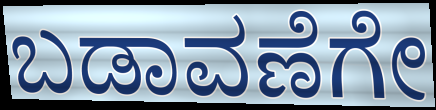
ಬಡಾವಣೆಗೇ